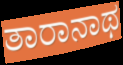
ತಾರಾನಾಥ